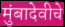
मुंबादेवीचे